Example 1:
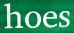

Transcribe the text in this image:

hoes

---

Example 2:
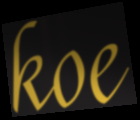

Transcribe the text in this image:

koe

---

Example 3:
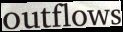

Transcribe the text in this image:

outflows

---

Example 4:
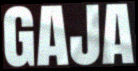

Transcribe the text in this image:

GAJA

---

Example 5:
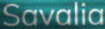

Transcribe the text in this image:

Savalia